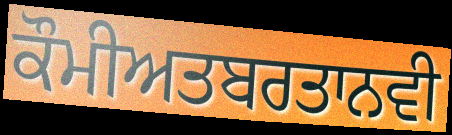
ਕੌਮੀਅਤਬਰਤਾਨਵੀ